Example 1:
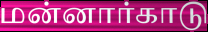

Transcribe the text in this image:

மன்னார்காடு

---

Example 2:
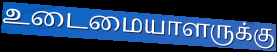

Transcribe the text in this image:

உடைமையாளருக்கு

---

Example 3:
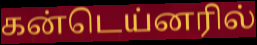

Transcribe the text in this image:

கன்டெய்னரில்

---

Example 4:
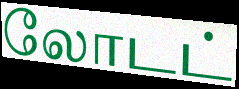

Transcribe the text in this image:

லோடட்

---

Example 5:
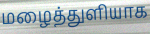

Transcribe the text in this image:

மழைத்துளியாக